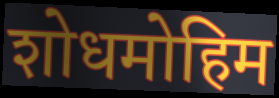
शोधमोहिम